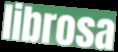
librosa